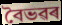
বৈভৱৰ